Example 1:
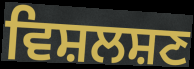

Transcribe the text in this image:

ਵਿਸ਼ਲਸ਼ਣ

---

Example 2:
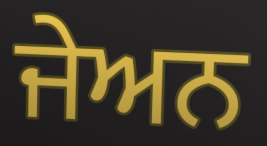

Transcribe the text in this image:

ਜੇਅਨ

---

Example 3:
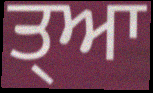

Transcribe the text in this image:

ਤ੍ਆ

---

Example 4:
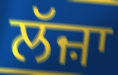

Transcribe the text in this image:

ਲੱਜ਼ਾ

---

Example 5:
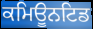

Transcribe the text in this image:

ਕਮਿਊਨਟਿਡ